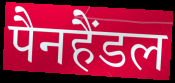
पैनहैंडल